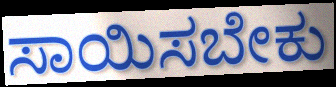
ಸಾಯಿಸಬೇಕು